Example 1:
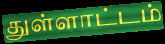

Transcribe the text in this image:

துள்ளாட்டம்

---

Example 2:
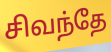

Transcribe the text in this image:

சிவந்தே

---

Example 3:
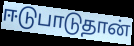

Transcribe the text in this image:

ஈடுபாடுதான்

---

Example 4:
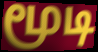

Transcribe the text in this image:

மூடி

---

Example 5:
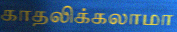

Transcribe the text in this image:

காதலிக்கலாமா